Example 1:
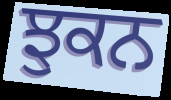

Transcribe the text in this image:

ਝੁਕਨ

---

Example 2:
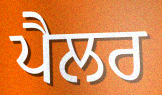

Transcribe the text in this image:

ਪੈਲਰ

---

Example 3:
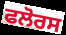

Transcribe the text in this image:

ਫਲੋਰਸ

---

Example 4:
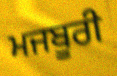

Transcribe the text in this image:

ਮਜਬੂਰੀ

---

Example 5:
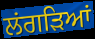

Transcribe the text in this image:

ਲਂਗੜਿਆਂ